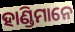
ହାଣ୍ଡିମାନେ